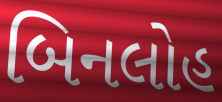
બિનલોહ